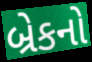
બ્રેકનો